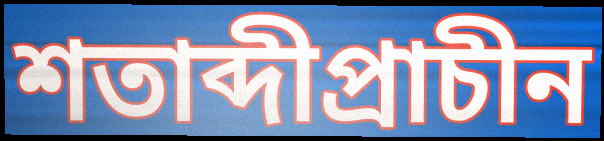
শতাব্দীপ্রাচীন